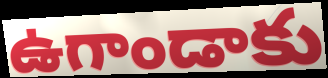
ఉగాండాకు